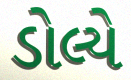
ડોલ્યે